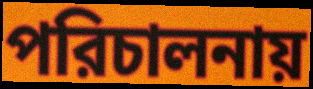
পরিচালনায়